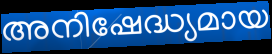
അനിഷേദ്ധ്യമായ